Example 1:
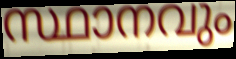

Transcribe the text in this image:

സ്ഥാനവും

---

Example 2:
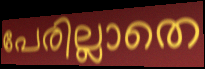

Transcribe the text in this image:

പേരില്ലാതെ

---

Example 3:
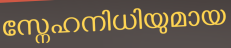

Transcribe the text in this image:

സ്നേഹനിധിയുമായ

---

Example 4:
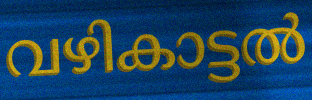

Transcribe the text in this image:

വഴികാട്ടൽ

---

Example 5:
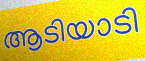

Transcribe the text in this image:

ആടിയാടി